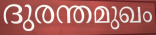
ദുരന്തമുഖം